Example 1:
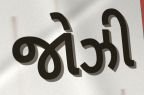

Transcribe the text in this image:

જોઝી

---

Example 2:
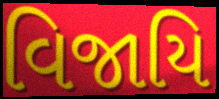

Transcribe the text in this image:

વિજાયિ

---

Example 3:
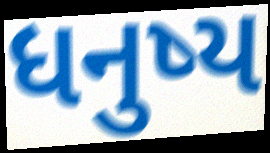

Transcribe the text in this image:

ધનુષ્ય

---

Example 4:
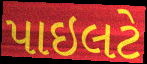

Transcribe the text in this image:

પાઇલટે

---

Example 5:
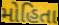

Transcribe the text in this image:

મોહિતા